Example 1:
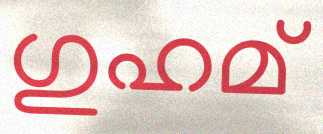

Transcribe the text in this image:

ഗുഹമ്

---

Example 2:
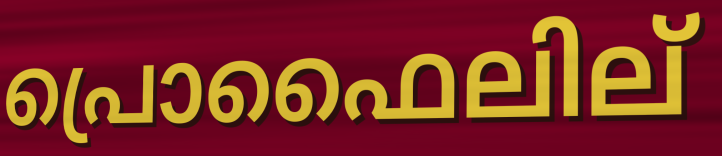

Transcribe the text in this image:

പ്രൊഫൈലില്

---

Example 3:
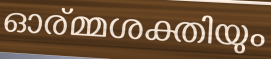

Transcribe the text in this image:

ഓര്മ്മശക്തിയും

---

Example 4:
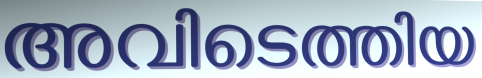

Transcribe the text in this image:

അവിടെത്തിയ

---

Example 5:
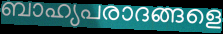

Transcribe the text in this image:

ബാഹ്യപരാദങ്ങളെ